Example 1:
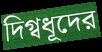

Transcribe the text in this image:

দিগ্বধূদের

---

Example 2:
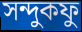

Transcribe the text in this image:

সন্দুকফু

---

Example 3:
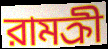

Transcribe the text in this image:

রামক্রী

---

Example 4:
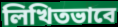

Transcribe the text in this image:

লিখিতভাবে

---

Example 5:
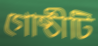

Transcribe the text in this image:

গোষ্ঠীটি